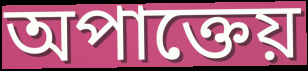
অপাক্তেয়